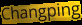
Changping